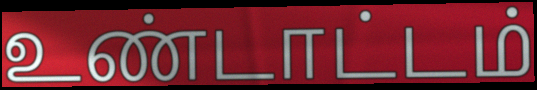
உண்டாட்டம்